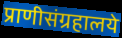
प्राणीसंग्रहालये